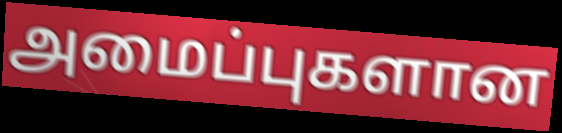
அமைப்புகளான